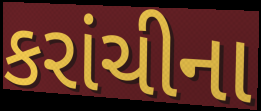
કરાંચીના